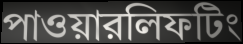
পাওয়ারলিফটিং